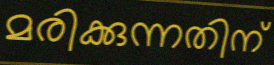
മരിക്കുന്നതിന്